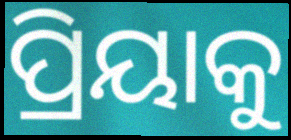
ପ୍ରିୟାକୁ